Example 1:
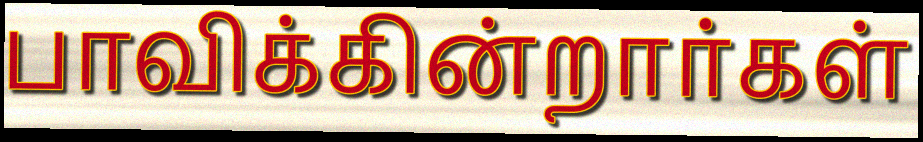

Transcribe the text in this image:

பாவிக்கின்றார்கள்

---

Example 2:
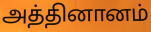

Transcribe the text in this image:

அத்தினானம்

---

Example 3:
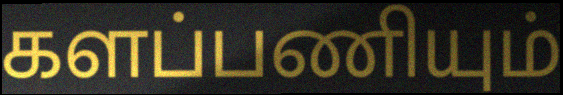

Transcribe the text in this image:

களப்பணியும்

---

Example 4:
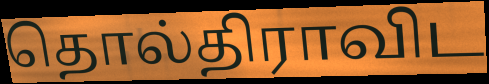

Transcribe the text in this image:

தொல்திராவிட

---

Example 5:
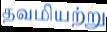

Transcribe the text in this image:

தவமியற்று